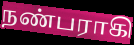
நண்பராகி